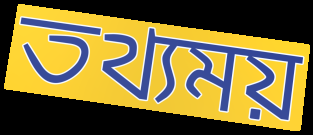
তথ্যময়